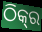
ଠିକ୍‍ର